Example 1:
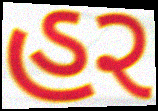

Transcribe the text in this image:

હર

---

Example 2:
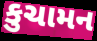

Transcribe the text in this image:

કુચામન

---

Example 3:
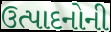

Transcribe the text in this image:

ઉત્પાદનોની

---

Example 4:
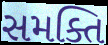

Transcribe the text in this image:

સમક્તિ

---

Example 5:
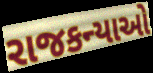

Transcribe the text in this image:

રાજકન્યાઓ